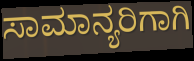
ಸಾಮಾನ್ಯರಿಗಾಗಿ